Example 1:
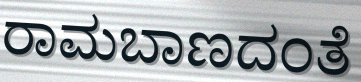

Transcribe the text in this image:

ರಾಮಬಾಣದಂತೆ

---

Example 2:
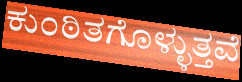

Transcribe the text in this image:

ಕುಂಠಿತಗೊಳ್ಳುತ್ತವೆ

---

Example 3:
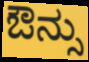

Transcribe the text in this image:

ಔನ್ಸು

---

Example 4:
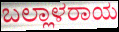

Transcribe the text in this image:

ಬಲ್ಲಾಳರಾಯ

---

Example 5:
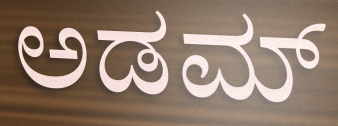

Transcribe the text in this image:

ಅಡಮ್